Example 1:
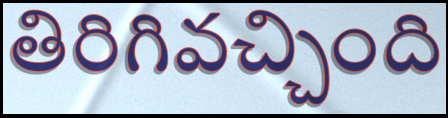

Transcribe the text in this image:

తిరిగివచ్చింది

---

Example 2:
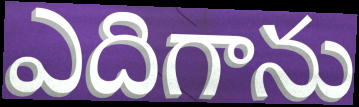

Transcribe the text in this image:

ఎదిగాను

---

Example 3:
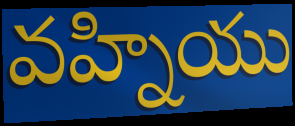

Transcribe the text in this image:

వహ్నియు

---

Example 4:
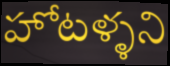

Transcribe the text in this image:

హోటళ్ళని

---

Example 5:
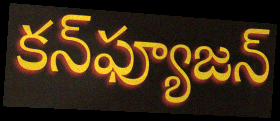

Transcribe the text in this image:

కన్‌ఫ్యూజన్